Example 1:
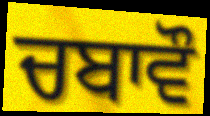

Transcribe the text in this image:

ਚਬਾਵੌ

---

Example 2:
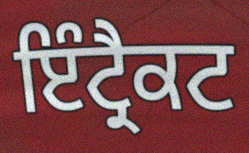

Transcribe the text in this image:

ਇੰਟ੍ਰੈਕਟ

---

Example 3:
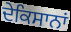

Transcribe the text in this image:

ਦੇਕਿਸਾਨਾਂ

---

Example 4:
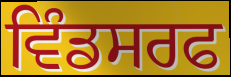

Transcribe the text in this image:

ਵਿੰਡਸਰਫ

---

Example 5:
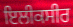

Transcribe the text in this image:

ਇਲੀਕਸੀਰ